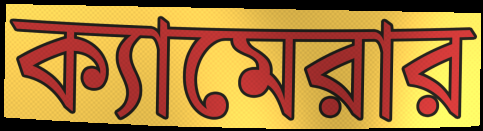
ক্যামেরার